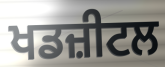
ਖਡਜ਼ੀਟਲ